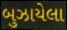
બુઝાયેલા